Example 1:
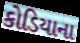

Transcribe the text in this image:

કોડિયાના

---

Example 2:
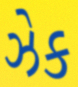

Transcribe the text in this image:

ઝેક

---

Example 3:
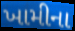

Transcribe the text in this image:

ખામીના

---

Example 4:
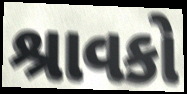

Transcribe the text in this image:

શ્રાવકો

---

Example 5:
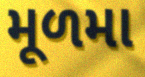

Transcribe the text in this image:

મૂળમા